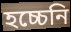
হচ্চেনি